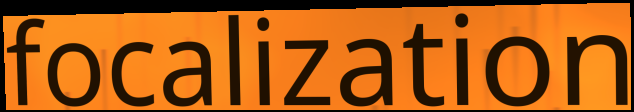
focalization